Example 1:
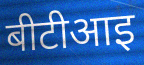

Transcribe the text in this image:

बीटीआइ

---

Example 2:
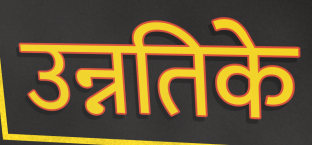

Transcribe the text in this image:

उन्नतिके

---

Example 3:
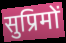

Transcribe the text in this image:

सुप्रिमों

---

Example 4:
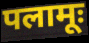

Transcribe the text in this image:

पलामूः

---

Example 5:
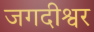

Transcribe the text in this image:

जगदीश्वर